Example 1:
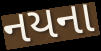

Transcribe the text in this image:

નયના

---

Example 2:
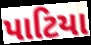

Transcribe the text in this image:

પાટિયા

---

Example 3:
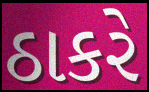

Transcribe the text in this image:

ઠાકરે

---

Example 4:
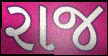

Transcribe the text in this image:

રાજ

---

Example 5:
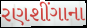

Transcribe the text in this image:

રણશીંગાના